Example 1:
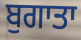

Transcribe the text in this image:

ਬੁਗਾਤਾ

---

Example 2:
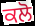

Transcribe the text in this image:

ਕਲੋ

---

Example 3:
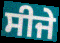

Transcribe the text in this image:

ਸੀਜੇ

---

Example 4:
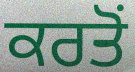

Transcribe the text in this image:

ਕਰਤੋਂ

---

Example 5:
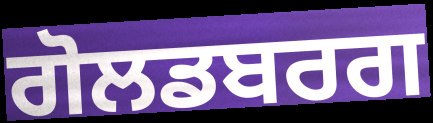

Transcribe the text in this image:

ਗੋਲਡਬਰਗ